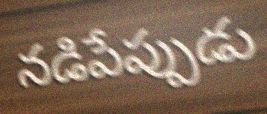
నడిపేప్పుడు